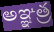
అఞ్ఞత్ర